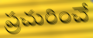
ప్రచురించే